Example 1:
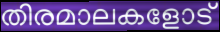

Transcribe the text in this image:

തിരമാലകളോട്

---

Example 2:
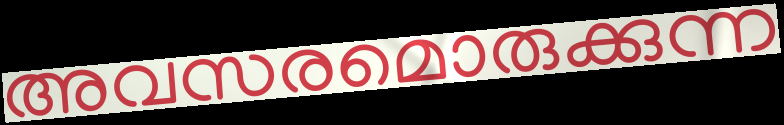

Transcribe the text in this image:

അവസരമൊരുക്കുന്ന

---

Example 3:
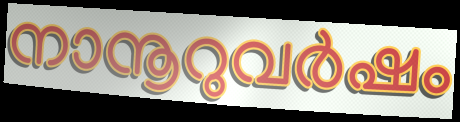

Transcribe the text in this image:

നാനൂറുവർഷം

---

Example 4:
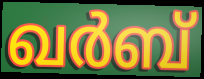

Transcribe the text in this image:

ഖർബ്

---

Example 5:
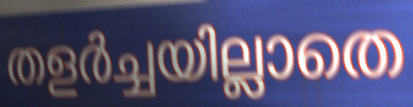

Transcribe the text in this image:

തളർച്ചയില്ലാതെ